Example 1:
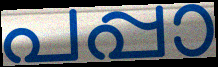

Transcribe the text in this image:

പപ്പാ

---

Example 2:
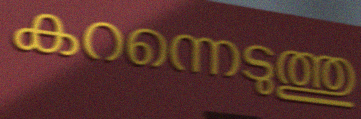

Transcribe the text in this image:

കറന്നെടുത്തു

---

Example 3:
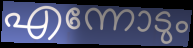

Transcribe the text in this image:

എന്നോടും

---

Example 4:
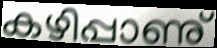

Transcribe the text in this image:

കഴിപ്പാണു്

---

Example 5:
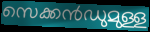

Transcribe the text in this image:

സെക്കൻഡുമുള്ള